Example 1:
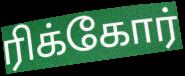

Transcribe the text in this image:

ரிக்கோர்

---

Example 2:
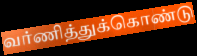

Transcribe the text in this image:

வர்ணித்துக்கொண்டு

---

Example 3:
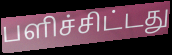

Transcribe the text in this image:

பளிச்சிட்டது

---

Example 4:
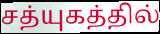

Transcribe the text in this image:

சத்யுகத்தில்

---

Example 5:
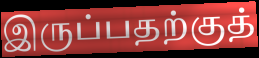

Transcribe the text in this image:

இருப்பதற்குத்